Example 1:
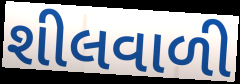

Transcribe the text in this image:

શીલવાળી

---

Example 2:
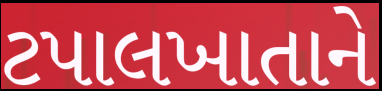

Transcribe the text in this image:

ટપાલખાતાને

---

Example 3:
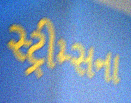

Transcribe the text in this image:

સ્ટ્રીમ્સના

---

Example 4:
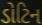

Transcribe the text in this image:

ડોટિન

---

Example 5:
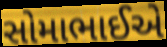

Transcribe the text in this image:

સોમાભાઈએ